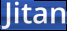
Jitan